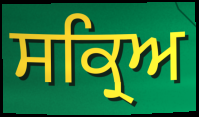
ਸਕ੍ਰਿਅ